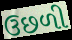
ઉછળી